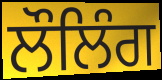
ਲੌਲਿੰਗ